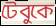
টেবুকে